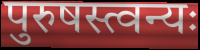
पुरुषस्त्वन्यः